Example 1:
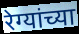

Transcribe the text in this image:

रेग्यांच्या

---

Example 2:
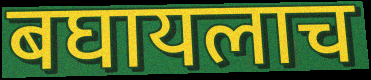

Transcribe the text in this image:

बघायलाच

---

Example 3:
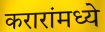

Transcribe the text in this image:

करारांमध्ये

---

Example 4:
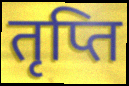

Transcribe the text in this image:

तृप्ति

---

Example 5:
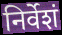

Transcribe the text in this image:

निर्वेशं